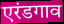
एरंडगाव